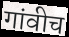
गांवीच